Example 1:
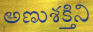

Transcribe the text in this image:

అణుశక్తిని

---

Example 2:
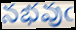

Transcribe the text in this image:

నభవుఁ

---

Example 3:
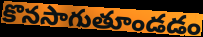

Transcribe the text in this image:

కొనసాగుతూండడం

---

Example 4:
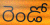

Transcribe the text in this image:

రెండో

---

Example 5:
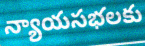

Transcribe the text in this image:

న్యాయసభలకు